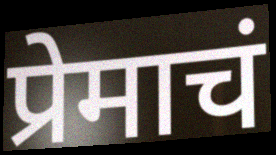
प्रेमाचं